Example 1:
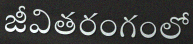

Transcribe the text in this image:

జీవితరంగంలో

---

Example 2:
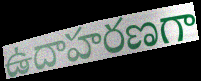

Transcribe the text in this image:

ఉదాహరణగా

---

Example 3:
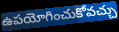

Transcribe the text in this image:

ఉపయోగించుకోవచ్చు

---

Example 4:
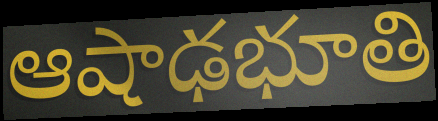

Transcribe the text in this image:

ఆషాఢభూతి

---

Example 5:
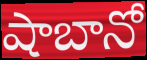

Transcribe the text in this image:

షాబానో